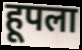
हूपला